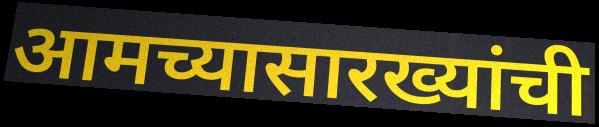
आमच्यासारख्यांची